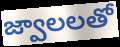
జ్వాలలతో